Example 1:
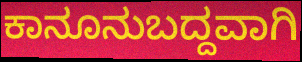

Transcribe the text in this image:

ಕಾನೂನುಬದ್ದವಾಗಿ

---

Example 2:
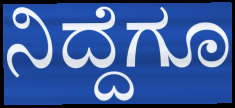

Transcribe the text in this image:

ನಿದ್ದೆಗೂ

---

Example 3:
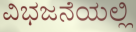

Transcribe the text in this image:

ವಿಭಜನೆಯಲ್ಲಿ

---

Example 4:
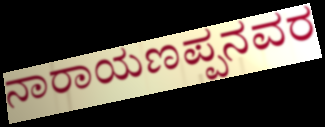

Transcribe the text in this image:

ನಾರಾಯಣಪ್ಪನವರ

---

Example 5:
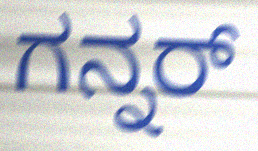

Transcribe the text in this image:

ಗನ್ನರ್